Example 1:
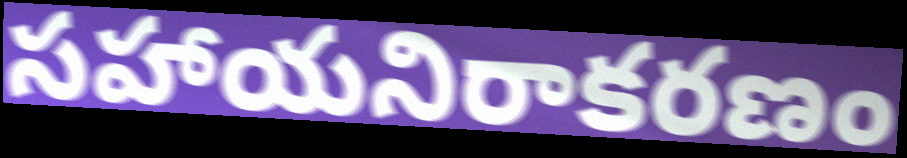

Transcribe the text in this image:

సహాయనిరాకరణం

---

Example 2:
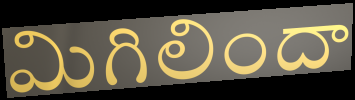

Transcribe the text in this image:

మిగిలిందా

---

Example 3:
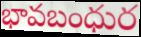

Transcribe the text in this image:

భావబంధుర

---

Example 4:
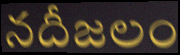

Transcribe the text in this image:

నదీజలం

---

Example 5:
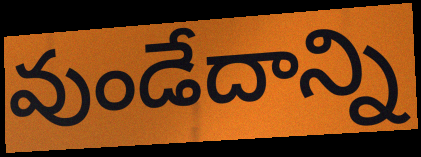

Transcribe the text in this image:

వుండేదాన్ని